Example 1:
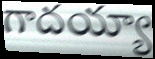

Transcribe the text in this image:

గాదయ్యా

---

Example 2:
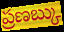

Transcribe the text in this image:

ప్రణబ్కు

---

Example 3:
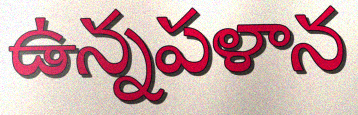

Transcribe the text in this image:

ఉన్నపళాన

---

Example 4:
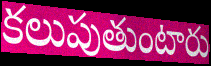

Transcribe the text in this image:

కలుపుతుంటారు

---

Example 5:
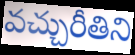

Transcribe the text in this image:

వచ్చురీతిని